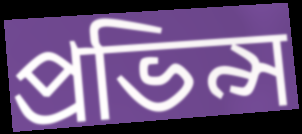
প্ৰভিন্স